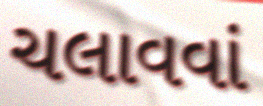
ચલાવવાં